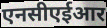
एनसीएईआर